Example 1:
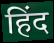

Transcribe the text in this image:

हिंद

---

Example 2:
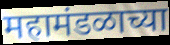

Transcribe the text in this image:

महामंडळाच्या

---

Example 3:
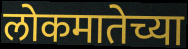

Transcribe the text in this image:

लोकमातेच्या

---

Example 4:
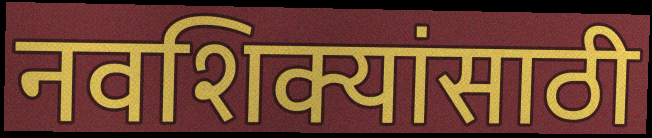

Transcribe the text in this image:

नवशिक्यांसाठी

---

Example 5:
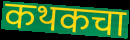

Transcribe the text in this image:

कथकचा